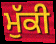
ਮੁੱਕੀ